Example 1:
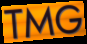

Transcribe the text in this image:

TMG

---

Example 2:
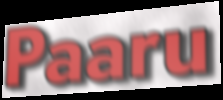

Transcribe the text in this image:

Paaru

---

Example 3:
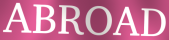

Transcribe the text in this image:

ABROAD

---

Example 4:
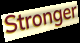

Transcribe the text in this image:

Stronger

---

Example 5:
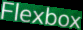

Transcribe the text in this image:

Flexbox